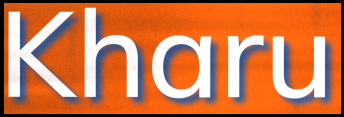
Kharu